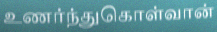
உணர்ந்துகொள்வான்